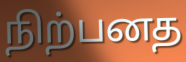
நிற்பனத